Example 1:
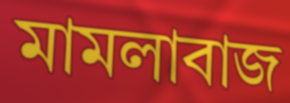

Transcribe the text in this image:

মামলাবাজ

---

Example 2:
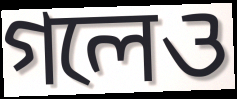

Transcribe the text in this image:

গলেও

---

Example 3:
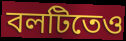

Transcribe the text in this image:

বলটিতেও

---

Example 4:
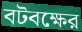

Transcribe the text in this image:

বটবক্ষের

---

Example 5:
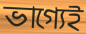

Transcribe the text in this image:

ভাগ্যেই